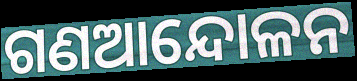
ଗଣଆନ୍ଦୋଳନ